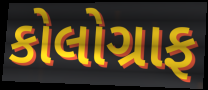
કોલોગ્રાફ